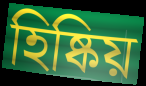
হিষ্কিয়